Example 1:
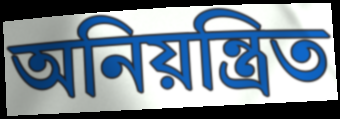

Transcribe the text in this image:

অনিয়ন্ত্ৰিত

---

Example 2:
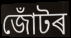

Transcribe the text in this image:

জোঁটৰ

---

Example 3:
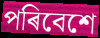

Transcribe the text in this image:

পৰিবেশে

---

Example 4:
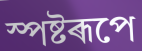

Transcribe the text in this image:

স্পষ্টৰূপে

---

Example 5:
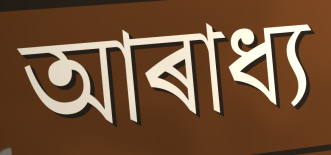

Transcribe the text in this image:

আৰাধ্য